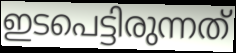
ഇടപെട്ടിരുന്നത്